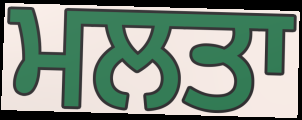
ਮਲਤਾ